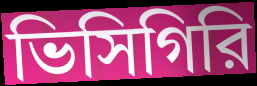
ভিসিগিরি